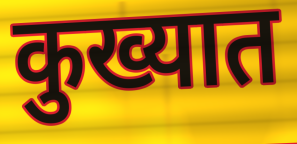
कुख्यात